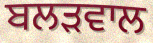
ਬਲੜਵਾਲ